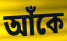
আঁকে